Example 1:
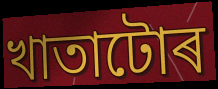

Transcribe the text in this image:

খাতাটোৰ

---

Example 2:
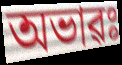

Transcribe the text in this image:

অভাৱঃ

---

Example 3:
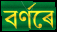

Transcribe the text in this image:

বৰ্ণৰে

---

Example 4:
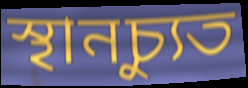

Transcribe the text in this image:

স্থানচ্যুত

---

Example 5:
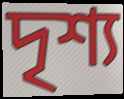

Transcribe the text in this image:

দৃশ্য